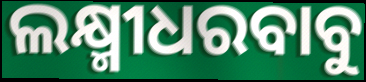
ଲକ୍ଷ୍ମୀଧରବାବୁ